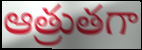
ఆత్రుతగా